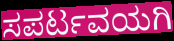
ಸಪರ್ಟವಯಗಿ